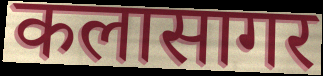
कलासागर